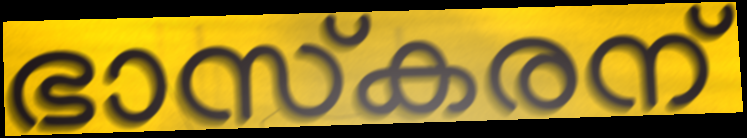
ഭാസ്‌കരന്